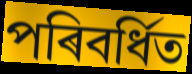
পৰিবৰ্ধিত